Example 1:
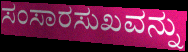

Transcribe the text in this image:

ಸಂಸಾರಸುಖವನ್ನು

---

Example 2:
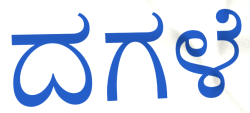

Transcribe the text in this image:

ದಗಳೆ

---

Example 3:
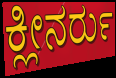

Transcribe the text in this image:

ಕ್ಲೀನರ್ರು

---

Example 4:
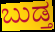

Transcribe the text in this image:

ಬುಡ್ತ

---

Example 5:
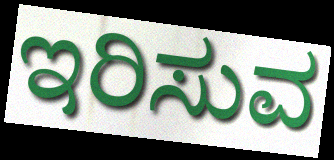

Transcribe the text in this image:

ಇರಿಸುವ